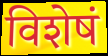
विशेषं